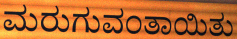
ಮರುಗುವಂತಾಯಿತು